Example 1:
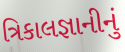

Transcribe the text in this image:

ત્રિકાલજ્ઞાનીનું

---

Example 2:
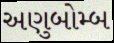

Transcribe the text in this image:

અણુબોમ્બ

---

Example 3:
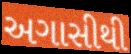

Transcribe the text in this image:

અગાસીથી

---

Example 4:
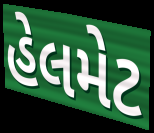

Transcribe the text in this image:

હેલમેટ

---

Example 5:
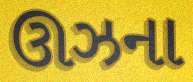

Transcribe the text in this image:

ઊઝના